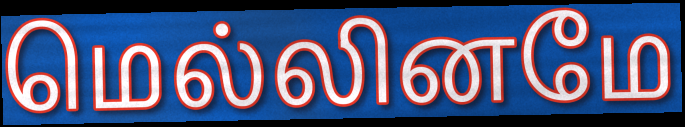
மெல்லினமே